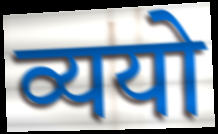
व्ययो